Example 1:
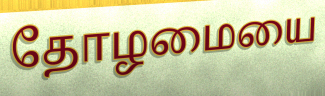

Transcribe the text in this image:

தோழமையை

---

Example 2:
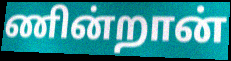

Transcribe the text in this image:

ணின்றான்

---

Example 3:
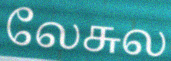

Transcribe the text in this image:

லேசுல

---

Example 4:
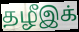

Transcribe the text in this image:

தழீஇக்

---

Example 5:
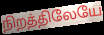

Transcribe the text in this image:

நிறத்திலேயே